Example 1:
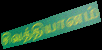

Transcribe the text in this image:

சிவத்தியானம்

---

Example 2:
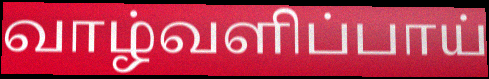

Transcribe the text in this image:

வாழ்வளிப்பாய்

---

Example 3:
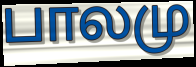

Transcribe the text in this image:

பாலமு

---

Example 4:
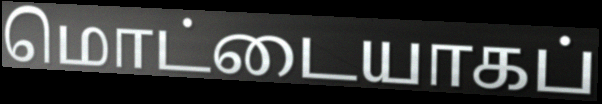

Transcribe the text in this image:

மொட்டையாகப்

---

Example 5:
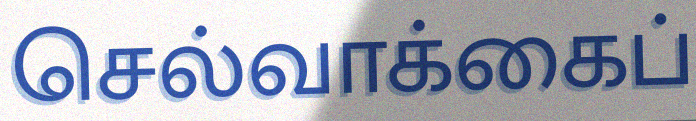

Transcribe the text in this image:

செல்வாக்கைப்